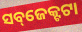
ସବ୍‌ଜେକ୍ଟଟା